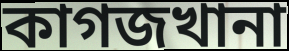
কাগজখানা